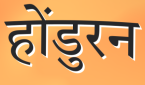
होंडुरन